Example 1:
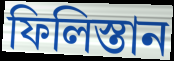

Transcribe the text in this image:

ফিলিস্তান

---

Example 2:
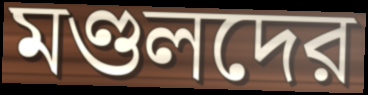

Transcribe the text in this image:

মণ্ডলদের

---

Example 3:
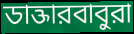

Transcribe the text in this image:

ডাক্তারবাবুরা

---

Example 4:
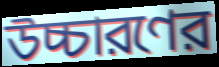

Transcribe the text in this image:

উচ্চারণের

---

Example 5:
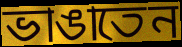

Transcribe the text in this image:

ভাঙাতেন